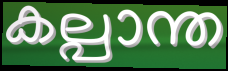
കല്പാന്ത